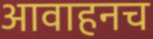
आवाहनच